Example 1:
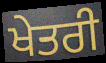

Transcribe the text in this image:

ਖੇਤਰੀ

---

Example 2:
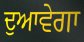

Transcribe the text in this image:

ਦੁਆਵੇਗਾ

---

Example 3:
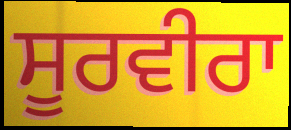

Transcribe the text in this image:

ਸੂਰਵੀਰਾ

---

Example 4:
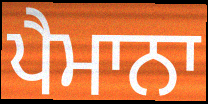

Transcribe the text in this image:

ਪੈਮਾਨਾ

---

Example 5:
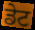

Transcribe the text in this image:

ਡੇਟ